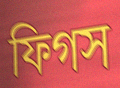
ফিগস